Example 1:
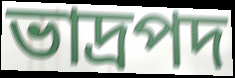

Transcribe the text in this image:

ভাদ্রপদ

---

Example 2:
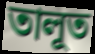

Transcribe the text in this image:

তালূত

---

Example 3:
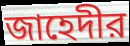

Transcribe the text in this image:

জাহেদীর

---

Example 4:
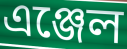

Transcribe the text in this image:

এঞ্জেল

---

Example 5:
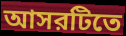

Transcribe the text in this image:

আসরটিতে